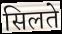
सिलते